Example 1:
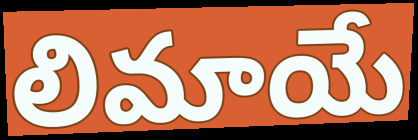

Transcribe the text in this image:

లిమాయే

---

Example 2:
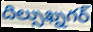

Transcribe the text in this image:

దిల్సుఖ్నగర్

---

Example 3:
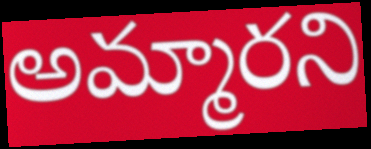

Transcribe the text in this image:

అమ్మారని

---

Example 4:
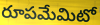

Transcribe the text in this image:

రూపమేమిటో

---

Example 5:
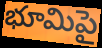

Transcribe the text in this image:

భూమిపై